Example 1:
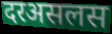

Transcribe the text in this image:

दरअसलस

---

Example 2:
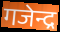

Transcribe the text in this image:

गजेन्द्र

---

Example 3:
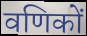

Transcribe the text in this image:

वणिकों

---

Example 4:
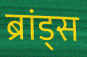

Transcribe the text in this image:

ब्रांड्स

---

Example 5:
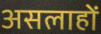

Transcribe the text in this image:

असलाहों